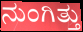
ನುಂಗಿತ್ತು